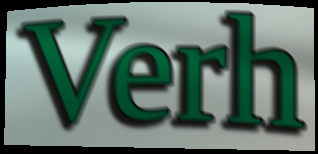
Verh